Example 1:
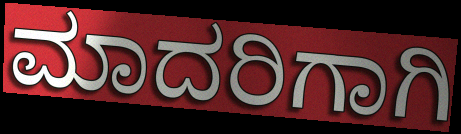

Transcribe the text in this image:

ಮಾದರಿಗಾಗಿ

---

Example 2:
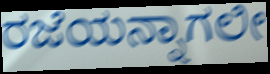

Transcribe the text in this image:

ರಜೆಯನ್ನಾಗಲೀ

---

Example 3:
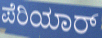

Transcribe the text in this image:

ಪೆರಿಯಾರ್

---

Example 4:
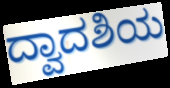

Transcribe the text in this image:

ದ್ವಾದಶಿಯ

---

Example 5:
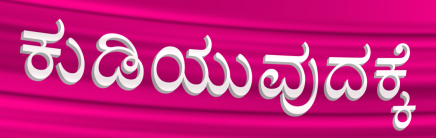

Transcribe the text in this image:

ಕುಡಿಯುವುದಕ್ಕೆ